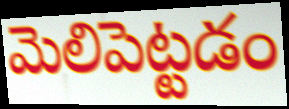
మెలిపెట్టడం